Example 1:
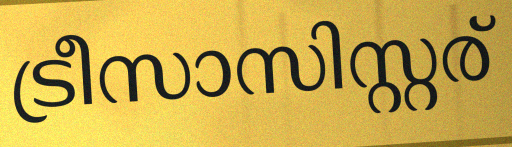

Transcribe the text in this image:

ട്രീസാസിസ്റ്റര്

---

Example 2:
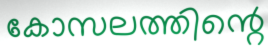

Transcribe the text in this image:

കോസലത്തിന്റെ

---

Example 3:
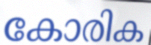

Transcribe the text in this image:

കോരിക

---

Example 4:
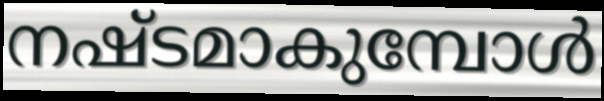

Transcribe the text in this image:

നഷ്ടമാകുമ്പോൾ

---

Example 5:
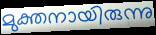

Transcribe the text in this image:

മുക്തനായിരുന്നു